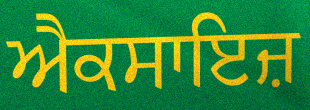
ਐਕਸਾਇਜ਼